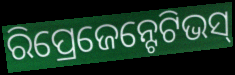
ରିପ୍ରେଜେନ୍ଟେଟିଭସ୍